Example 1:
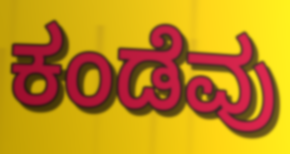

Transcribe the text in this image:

ಕಂಡೆವು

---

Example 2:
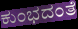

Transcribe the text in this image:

ಕುಂಭದಂತೆ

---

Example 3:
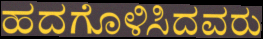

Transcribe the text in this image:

ಹದಗೊಳಿಸಿದವರು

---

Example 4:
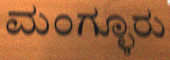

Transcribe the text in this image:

ಮಂಗ್ಳೂರು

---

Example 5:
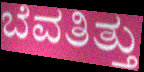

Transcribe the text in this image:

ಬೆವತಿತ್ತು